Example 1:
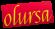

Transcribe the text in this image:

olursa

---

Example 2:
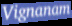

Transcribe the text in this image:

Vignanam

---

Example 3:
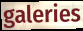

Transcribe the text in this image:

galeries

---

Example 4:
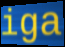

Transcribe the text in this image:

iga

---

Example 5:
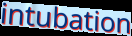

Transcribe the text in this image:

intubation